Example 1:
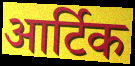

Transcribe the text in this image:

आर्टिक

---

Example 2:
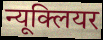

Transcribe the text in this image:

न्‍यूक्‍लियर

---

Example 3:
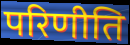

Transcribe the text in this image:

परिणीति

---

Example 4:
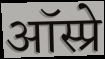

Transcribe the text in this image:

ऑस्प्रे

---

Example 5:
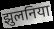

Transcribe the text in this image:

झुलनिया